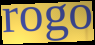
rogo